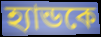
হ্যান্ডকে